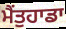
ਮੈਂਤੁਹਾਡਾ